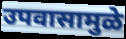
उपवासामुळे